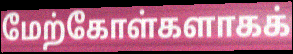
மேற்கோள்களாகக்